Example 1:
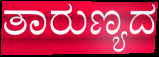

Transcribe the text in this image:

ತಾರುಣ್ಯದ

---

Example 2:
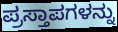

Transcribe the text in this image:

ಪ್ರಸ್ತಾಪಗಳನ್ನು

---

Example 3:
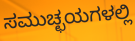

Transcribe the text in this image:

ಸಮುಚ್ಛಯಗಳಲ್ಲಿ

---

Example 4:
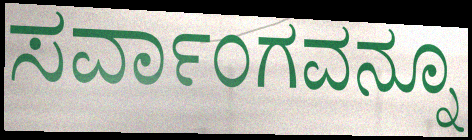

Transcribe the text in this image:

ಸರ್ವಾಂಗವನ್ನೂ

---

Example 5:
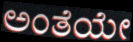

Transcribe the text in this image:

ಅಂತೆಯೇ